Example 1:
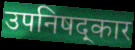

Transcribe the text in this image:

उपनिषद्कार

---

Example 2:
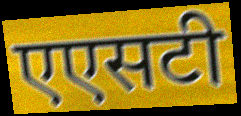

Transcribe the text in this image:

एएसटी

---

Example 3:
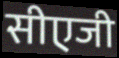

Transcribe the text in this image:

सीएजी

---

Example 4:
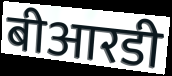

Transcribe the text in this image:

बीआरडी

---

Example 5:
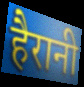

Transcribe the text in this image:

हैरानी